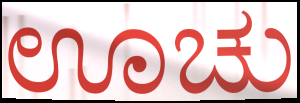
ಊಚು